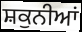
ਸ਼ਕੁਨੀਆਂ